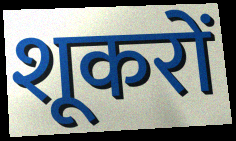
शूकरों